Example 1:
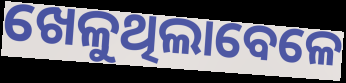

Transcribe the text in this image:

ଖେଳୁଥିଲାବେଳେ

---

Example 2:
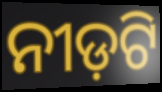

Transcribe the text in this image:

ନୀଡ଼ଟି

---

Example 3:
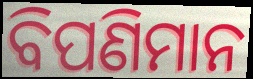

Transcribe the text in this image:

ବିପଣିମାନ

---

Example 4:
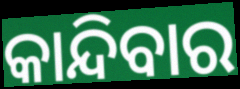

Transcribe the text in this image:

କାନ୍ଦିବାର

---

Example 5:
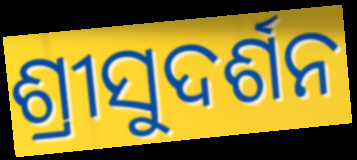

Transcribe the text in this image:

ଶ୍ରୀସୁଦର୍ଶନ